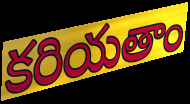
కరియతాం